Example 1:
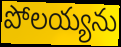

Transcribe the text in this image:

పోలయ్యను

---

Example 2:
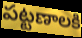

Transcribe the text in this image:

పట్టణాలకి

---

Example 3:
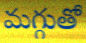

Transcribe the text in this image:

మగ్గుతో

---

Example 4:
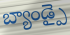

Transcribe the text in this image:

బ్యాండ్పై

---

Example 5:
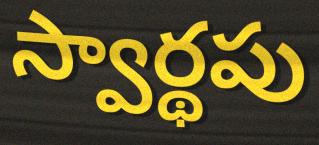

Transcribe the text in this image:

స్వార్థపు